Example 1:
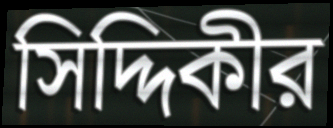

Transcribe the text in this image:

সিদ্দিকীর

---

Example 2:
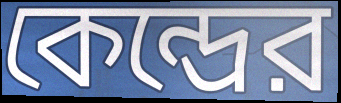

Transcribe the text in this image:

কেন্দ্রের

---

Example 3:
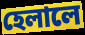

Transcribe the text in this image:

হেলালে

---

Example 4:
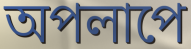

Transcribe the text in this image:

অপলাপে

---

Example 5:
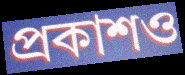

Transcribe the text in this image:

প্রকাশও